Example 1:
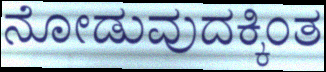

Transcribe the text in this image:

ನೋಡುವುದಕ್ಕಿಂತ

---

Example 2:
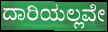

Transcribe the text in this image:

ದಾರಿಯಲ್ಲವೇ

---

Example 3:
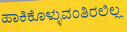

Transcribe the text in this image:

ಹಾಕಿಕೊಳ್ಳುವಂತಿರಲಿಲ್ಲ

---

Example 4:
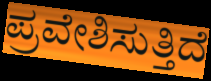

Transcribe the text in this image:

ಪ್ರವೇಶಿಸುತ್ತಿದೆ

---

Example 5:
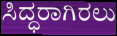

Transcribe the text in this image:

ಸಿದ್ಧರಾಗಿರಲು